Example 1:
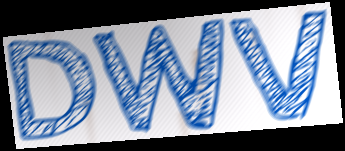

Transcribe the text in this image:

DWV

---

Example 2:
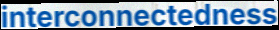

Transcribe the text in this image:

interconnectedness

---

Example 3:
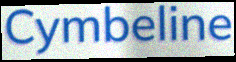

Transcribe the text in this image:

Cymbeline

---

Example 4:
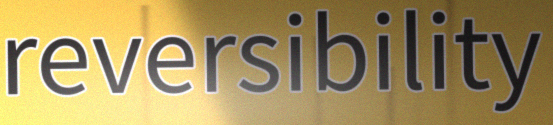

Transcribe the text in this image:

reversibility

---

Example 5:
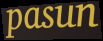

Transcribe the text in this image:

pasun